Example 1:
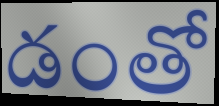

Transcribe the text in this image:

డంతో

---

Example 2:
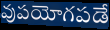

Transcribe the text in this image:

వుపయోగపడే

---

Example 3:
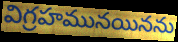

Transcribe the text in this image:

విగ్రహమునయినను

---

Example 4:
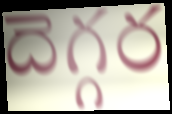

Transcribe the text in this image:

దెగ్గర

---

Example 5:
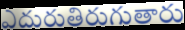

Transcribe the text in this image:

ఎదురుతిరుగుతారు